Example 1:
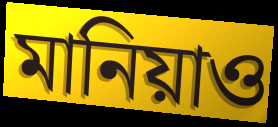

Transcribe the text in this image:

মানিয়াও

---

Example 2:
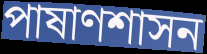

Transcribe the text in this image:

পাষাণশাসন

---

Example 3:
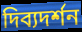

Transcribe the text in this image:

দিব্যদর্শন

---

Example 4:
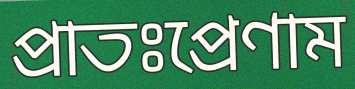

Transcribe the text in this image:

প্রাতঃপ্রেণাম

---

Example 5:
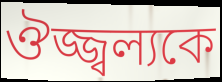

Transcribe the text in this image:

ঔজ্জ্বল্যকে